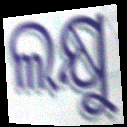
ଲକ୍ଷୁ